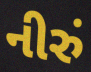
નીરું